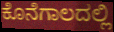
ಕೊನೆಗಾಲದಲ್ಲಿ